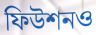
ফিউশনও